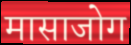
मासाजोग